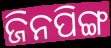
ଜିନପିଙ୍ଗ